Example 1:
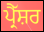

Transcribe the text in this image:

ਪ੍ਰੈੱਸ਼ਰ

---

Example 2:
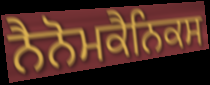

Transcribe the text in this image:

ਨੈਨੋਮਕੈਨਿਕਸ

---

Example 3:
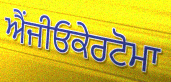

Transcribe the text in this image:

ਐਂਜੀਓਕੇਰਟੋਮਾ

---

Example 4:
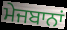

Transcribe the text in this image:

ਮੇਜਬਾਨਾਂ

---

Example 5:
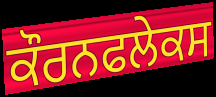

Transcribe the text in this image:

ਕੌਰਨਫਲੇਕਸ